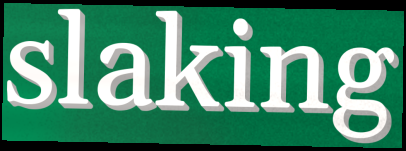
slaking